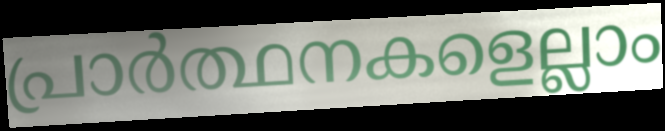
പ്രാർത്ഥനകളെല്ലാം